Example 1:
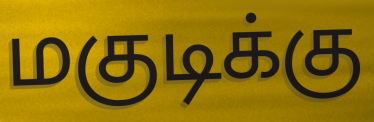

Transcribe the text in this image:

மகுடிக்கு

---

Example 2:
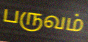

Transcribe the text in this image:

பருவம்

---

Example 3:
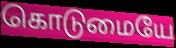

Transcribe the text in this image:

கொடுமையே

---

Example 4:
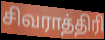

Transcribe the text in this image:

சிவராத்திரி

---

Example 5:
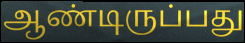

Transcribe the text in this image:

ஆண்டிருப்பது